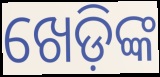
ଖେଡ଼ିଙ୍କ